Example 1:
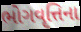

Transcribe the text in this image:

ભોગવૃત્તિના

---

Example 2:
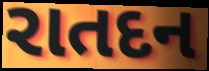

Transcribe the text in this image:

રાતદન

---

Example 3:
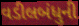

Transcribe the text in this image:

વડીલબંધુની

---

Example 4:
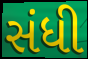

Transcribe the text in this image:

સંધી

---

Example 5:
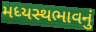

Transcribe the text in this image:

મધ્યસ્થભાવનું